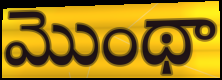
మొంథా